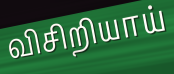
விசிறியாய்